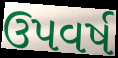
ઉપવર્ષ